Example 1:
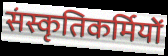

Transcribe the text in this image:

संस्कृतिकर्मियों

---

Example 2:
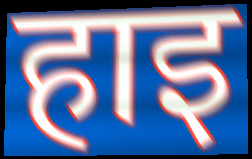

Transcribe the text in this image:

हाइ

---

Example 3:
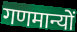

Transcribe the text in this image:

गणमान्यों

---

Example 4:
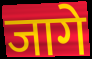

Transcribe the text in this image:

जागे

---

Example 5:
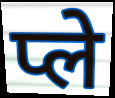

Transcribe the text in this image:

प्ले